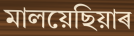
মালয়েছিয়াৰ